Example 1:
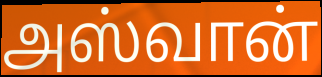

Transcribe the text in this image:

அஸ்வான்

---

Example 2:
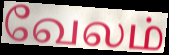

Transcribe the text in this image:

வேலம்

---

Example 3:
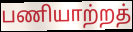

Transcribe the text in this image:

பணியாற்றத்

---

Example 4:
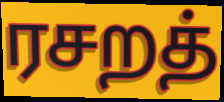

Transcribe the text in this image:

ரசறத்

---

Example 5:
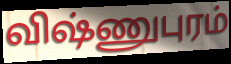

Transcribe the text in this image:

விஷ்ணுபுரம்